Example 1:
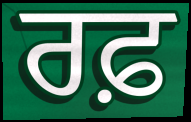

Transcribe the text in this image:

ਰਫ਼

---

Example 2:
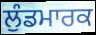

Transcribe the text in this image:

ਲੁੰਡਮਾਰਕ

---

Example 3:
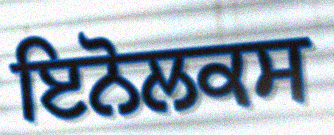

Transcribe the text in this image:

ਇਨੋਲਕਸ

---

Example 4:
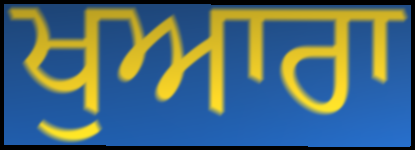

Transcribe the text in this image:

ਖੁਆਰਾ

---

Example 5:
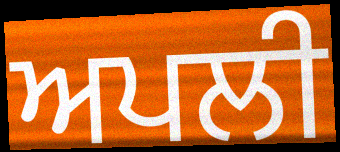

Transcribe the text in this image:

ਅਪਲੀ